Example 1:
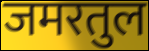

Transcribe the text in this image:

जमरतुल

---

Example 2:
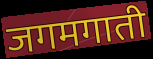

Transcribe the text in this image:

जगमगाती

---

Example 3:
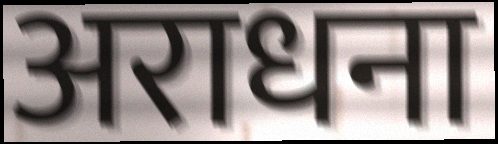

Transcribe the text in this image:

अराधना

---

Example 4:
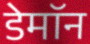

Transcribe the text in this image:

डेमॉन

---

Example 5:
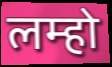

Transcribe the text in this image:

लम्हो